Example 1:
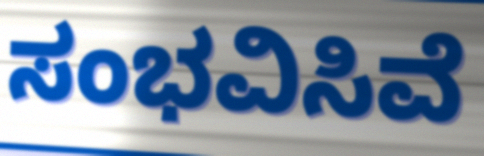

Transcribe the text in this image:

ಸಂಭವಿಸಿವೆ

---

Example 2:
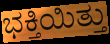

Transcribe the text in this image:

ಭಕ್ತಿಯಿತ್ತು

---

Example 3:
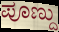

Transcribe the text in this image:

ಪೂಣ್ದು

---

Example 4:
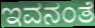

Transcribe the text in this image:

ಇವನಂತೆ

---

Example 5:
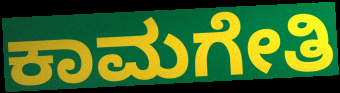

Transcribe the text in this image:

ಕಾಮಗೇತಿ